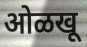
ओळखू